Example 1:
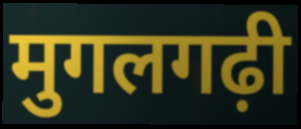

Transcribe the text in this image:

मुगलगढ़ी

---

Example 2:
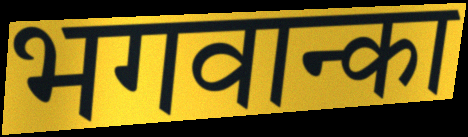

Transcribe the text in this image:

भगवान्का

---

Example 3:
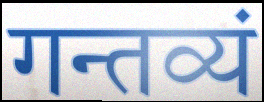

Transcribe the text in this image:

गन्तव्यं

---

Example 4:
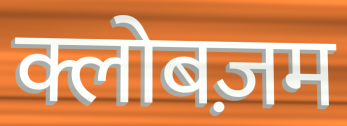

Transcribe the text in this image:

क्लोबज़म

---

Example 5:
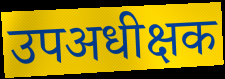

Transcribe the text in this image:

उपअधीक्षक